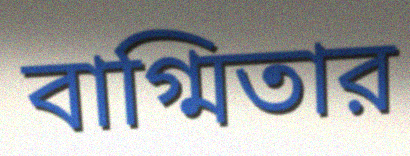
বাগ্মিতার